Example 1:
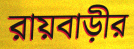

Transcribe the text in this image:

রায়বাড়ীর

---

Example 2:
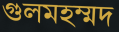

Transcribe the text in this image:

গুলমহম্মদ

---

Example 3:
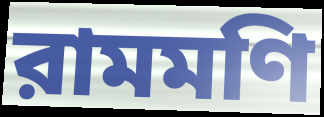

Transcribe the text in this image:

রামমণি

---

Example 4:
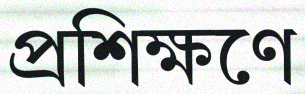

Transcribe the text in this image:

প্রশিক্ষণে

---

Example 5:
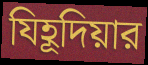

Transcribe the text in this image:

যিহূদিয়ার